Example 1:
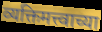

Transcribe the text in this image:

व्यक्तिमत्त्वाच्या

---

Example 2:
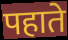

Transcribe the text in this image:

पहाते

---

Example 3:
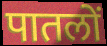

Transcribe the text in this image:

पातलों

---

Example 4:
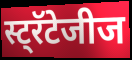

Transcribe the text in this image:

स्ट्रॅटेजीज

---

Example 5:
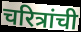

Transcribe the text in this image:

चरित्रांची